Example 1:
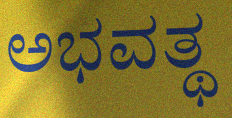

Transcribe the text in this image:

ಅಭವತ್ಥ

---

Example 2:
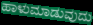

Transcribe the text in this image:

ಹಾಳುಮಾಡುವುದು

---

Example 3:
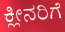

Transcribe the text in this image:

ಕ್ಲೀನರಿಗೆ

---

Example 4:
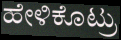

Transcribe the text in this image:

ಹೇಳಿಕೊಟ್ರು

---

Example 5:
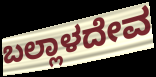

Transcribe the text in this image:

ಬಲ್ಲಾಳದೇವ